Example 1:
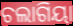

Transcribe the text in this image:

ଚଲାଗିୟା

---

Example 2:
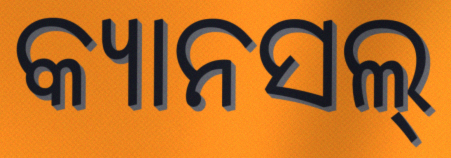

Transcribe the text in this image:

କ୍ୟାନସଲ୍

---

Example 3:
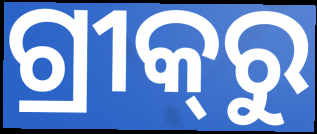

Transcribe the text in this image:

ଗ୍ରୀକ୍‌ରୁ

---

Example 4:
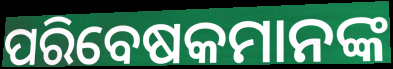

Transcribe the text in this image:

ପରିବେଷକମାନଙ୍କ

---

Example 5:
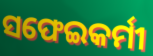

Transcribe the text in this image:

ସଫେଇକର୍ମୀ